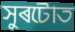
সুৰটোত